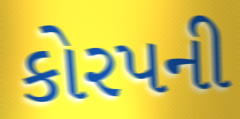
કોરપની